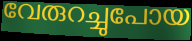
വേരുറച്ചുപോയ